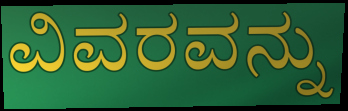
ವಿವರವನ್ನು